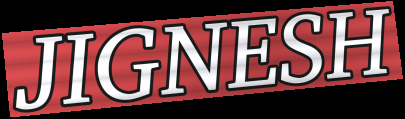
JIGNESH